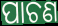
ପାଚଣ